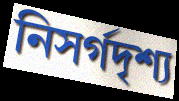
নিসর্গদৃশ্য